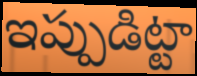
ఇప్పుడిట్టా